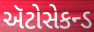
ઍટોસેકન્ડ